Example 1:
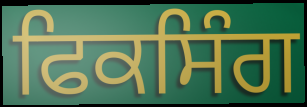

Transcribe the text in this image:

ਫਿਕਸਿੰਗ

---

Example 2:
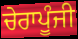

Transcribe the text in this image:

ਚੇਰਾਪੂੰਜੀ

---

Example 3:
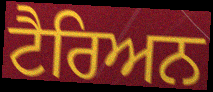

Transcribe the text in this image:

ਟੈਰਿਅਨ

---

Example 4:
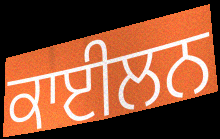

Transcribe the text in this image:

ਕਾਈਲਨ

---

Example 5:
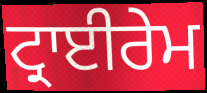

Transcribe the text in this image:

ਟ੍ਰਾਈਰੇਮ